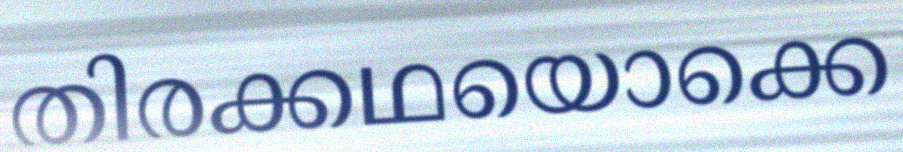
തിരക്കഥയൊക്കെ